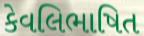
કેવલિભાષિત